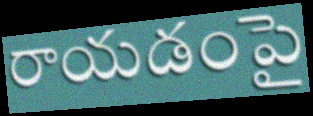
రాయడంపై